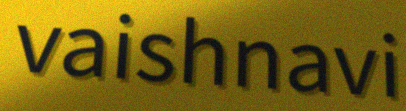
vaishnavi